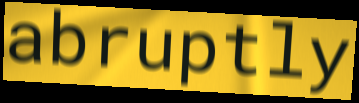
abruptly